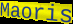
Maoris